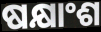
ଷକ୍ଷାଂଶ